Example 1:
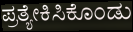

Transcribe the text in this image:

ಪ್ರತ್ಯೇಕಿಸಿಕೊಂಡು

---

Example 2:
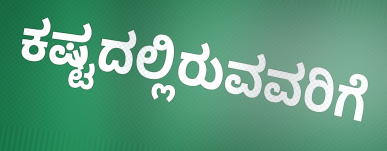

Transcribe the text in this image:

ಕಷ್ಟದಲ್ಲಿರುವವರಿಗೆ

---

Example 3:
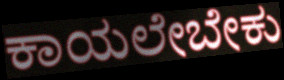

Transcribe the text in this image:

ಕಾಯಲೇಬೇಕು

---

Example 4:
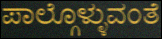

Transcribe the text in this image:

ಪಾಲ್ಗೊಳ್ಳುವಂತೆ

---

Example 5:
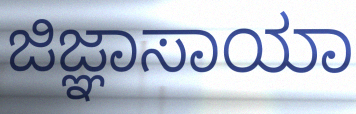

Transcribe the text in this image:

ಜಿಜ್ಞಾಸಾಯಾ